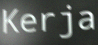
Kerja